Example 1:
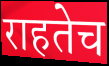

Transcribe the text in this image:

राहतेच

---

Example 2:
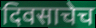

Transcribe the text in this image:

दिवसाचेच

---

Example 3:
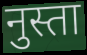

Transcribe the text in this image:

नुस्ता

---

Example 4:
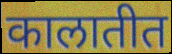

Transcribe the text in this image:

कालातीत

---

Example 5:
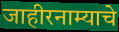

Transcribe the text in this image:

जाहीरनाम्याचे